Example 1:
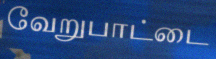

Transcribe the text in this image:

வேறுபாட்டை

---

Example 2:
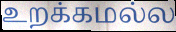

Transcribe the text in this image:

உறக்கமல்ல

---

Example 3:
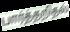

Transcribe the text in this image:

பார்த்தறிதல்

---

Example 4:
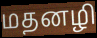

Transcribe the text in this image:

மதனழி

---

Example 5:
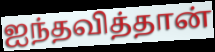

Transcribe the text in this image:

ஐந்தவித்தான்